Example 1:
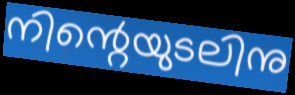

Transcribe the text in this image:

നിന്റെയുടലിനു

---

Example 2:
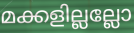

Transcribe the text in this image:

മക്കളില്ലല്ലോ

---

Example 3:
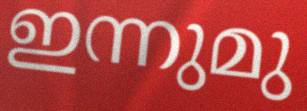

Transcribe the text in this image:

ഇന്നുമു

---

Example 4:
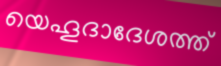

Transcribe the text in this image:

യെഹൂദാദേശത്ത്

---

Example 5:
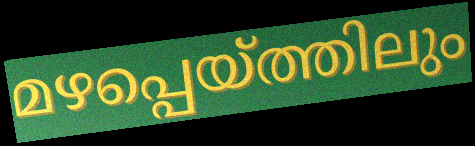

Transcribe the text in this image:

മഴപ്പെയ്ത്തിലും